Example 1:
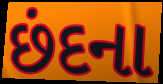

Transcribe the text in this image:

છંદના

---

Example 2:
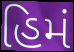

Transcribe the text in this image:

હિમં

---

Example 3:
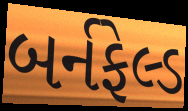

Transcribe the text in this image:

બર્નફેલ્ડ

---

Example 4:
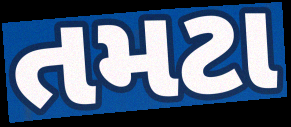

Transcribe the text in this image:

તમટા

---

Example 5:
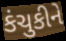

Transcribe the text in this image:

કંચુકીને